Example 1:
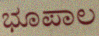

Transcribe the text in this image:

ಭೂಪಾಲ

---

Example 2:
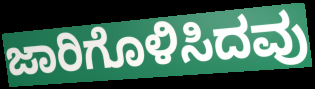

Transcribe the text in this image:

ಜಾರಿಗೊಳಿಸಿದವು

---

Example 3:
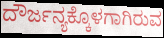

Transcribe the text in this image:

ದೌರ್ಜನ್ಯಕ್ಕೊಳಗಾಗಿರುವ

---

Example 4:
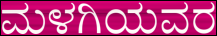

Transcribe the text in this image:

ಮಳಗಿಯವರ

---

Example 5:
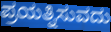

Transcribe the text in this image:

ಪ್ರಯತ್ನಿಸುವದು